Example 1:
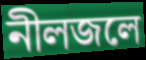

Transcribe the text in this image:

নীলজলে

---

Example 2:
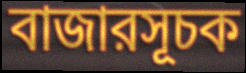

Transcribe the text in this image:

বাজারসূচক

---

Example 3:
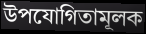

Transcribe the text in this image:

উপযোগিতামূলক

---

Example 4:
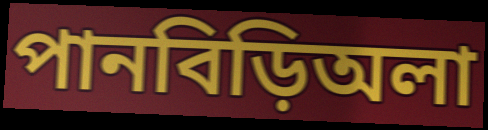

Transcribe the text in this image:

পানবিড়িঅলা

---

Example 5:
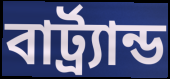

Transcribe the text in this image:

বার্ট্র্যান্ড